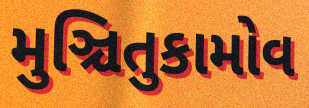
મુઞ્ચિતુકામોવ